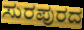
ಸುರಪುರದ